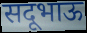
सदूभाऊ